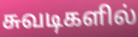
சுவடிகளில்